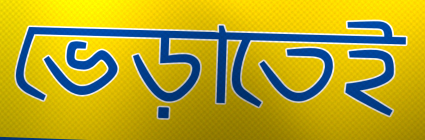
ভেড়াতেই